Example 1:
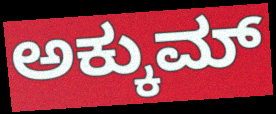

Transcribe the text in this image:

ಅಕ್ಕುಮ್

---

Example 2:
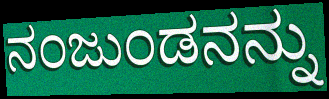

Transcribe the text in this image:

ನಂಜುಂಡನನ್ನು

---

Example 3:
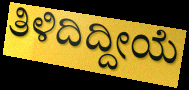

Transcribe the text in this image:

ತಿಳಿದಿದ್ದೀಯೆ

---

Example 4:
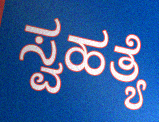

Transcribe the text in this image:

ಸ್ವಹತ್ಯೆ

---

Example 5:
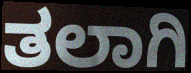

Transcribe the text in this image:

ತಲಾಗಿ